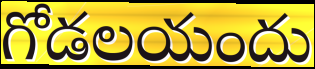
గోడలయందు